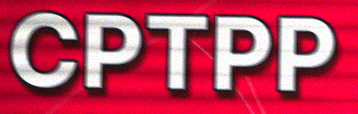
CPTPP